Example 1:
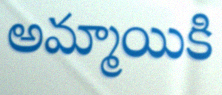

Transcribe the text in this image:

అమ్మాయికి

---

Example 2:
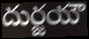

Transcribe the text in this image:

దుర్జయౌ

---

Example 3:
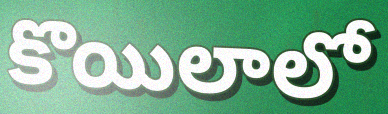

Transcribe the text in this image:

కొయిలాలో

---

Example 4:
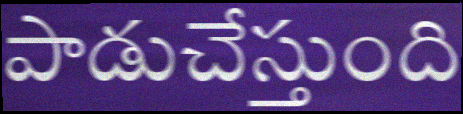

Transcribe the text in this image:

పాడుచేస్తుంది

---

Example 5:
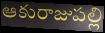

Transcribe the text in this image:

ఆకురాజుపల్లి